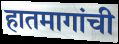
हातमागांची